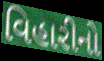
વિહારીનો